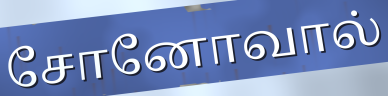
சோனோவால்